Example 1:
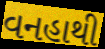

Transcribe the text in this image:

વનહાથી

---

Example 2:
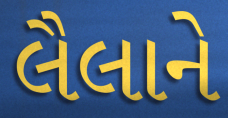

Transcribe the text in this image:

લૈલાને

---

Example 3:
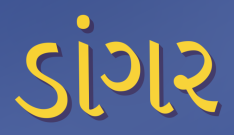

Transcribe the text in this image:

ડાંગર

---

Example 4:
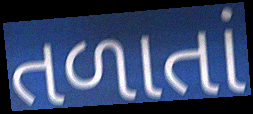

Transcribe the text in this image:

તળાતાં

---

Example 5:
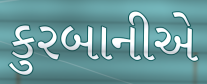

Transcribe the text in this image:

કુરબાનીએ